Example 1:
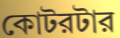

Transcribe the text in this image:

কোটরটার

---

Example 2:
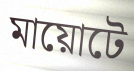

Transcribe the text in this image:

মায়োটে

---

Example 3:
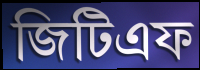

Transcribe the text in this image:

জিটিএফ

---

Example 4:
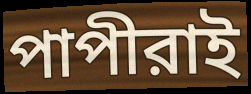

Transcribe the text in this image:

পাপীরাই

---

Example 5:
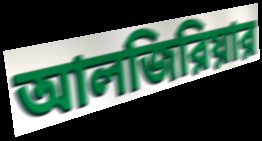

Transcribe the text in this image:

আলজিরিয়ার